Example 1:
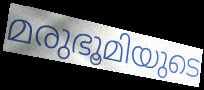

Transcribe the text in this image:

മരുഭൂമിയുടെ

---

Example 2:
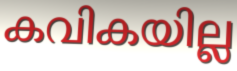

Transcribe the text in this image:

കവികയില്ല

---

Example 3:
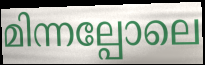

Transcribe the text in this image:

മിന്നല്പോലെ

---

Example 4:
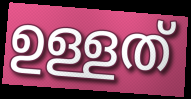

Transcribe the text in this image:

ഉള്ളത്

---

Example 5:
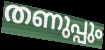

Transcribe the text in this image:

തണുപ്പും